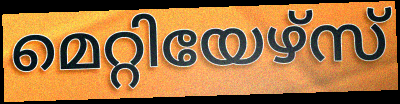
മെറ്റിയേഴ്സ്